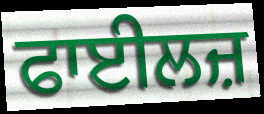
ਫਾਈਲਜ਼